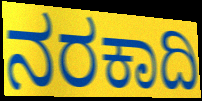
ನರಕಾದಿ